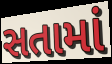
સતામાં